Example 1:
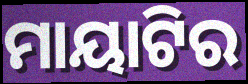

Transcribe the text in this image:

ମାୟାଟିର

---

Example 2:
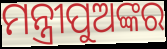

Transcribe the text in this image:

ମନ୍ତ୍ରୀପୁଅଙ୍କର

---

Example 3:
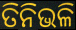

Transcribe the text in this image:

ତିନିଭଳି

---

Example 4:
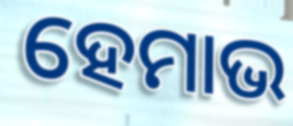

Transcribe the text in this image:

ହେମାଭ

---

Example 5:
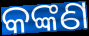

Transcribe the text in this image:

କଙ୍କଣ